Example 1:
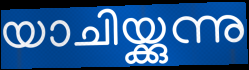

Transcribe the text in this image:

യാചിയ്ക്കുന്നു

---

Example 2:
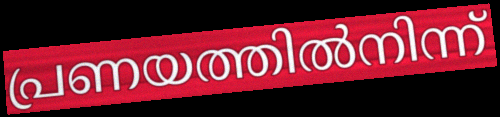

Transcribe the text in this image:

പ്രണയത്തിൽനിന്ന്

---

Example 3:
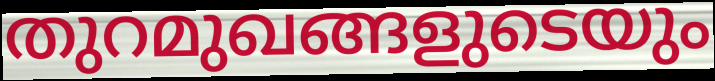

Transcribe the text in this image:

തുറമുഖങ്ങളുടെയും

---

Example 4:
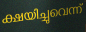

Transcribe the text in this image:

ക്ഷയിച്ചുവെന്ന്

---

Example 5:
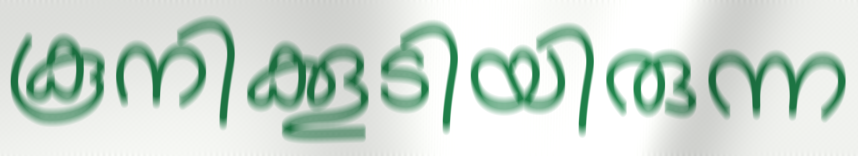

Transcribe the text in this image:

കൂനിക്കൂടിയിരുന്ന